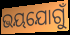
ଭୟଯୋଗୁଁ